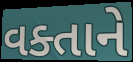
વક્તાને